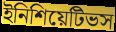
ইনিশিয়েটিভস